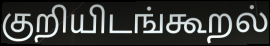
குறியிடங்கூறல்